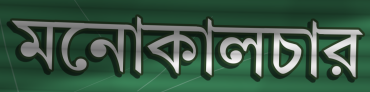
মনোকালচার